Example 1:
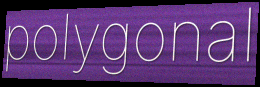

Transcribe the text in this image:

polygonal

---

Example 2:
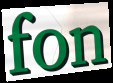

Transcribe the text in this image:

fon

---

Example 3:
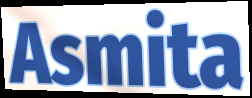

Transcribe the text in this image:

Asmita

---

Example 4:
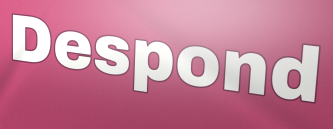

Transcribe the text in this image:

Despond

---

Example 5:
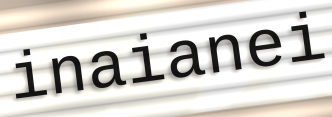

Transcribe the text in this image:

inaianei